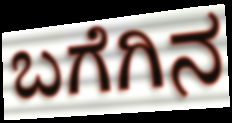
ಬಗೆಗಿನ